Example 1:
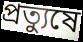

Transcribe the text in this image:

প্রত্যুষে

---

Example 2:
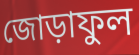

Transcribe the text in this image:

জোড়াফুল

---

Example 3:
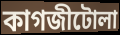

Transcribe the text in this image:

কাগজীটোলা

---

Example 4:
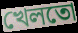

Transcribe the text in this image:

খেলতো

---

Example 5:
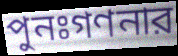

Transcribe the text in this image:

পুনঃগণনার